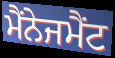
ਮੈਂਨੇਜਮੈਂਟ